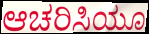
ಆಚರಿಸಿಯೂ